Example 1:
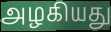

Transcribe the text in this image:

அழகியது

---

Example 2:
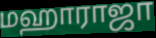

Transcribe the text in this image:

மஹாராஜா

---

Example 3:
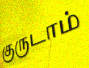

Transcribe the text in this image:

குருடாம்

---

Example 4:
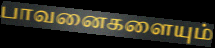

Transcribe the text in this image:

பாவனைகளையும்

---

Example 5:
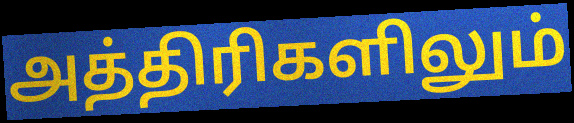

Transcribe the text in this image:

அத்திரிகளிலும்